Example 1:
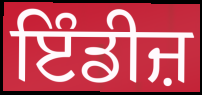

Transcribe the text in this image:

ਇੰਡੀਜ਼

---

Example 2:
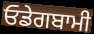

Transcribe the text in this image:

ਓਡੇਗਬਾਮੀ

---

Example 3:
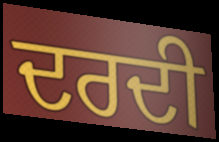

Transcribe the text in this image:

ਦਰਦੀ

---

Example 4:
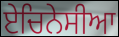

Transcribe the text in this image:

ਏਚਿਨੇਸੀਆ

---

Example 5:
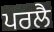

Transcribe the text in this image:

ਪਰਲੈ